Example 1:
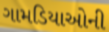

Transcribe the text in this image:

ગામડિયાઓની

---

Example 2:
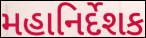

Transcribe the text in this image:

મહાનિર્દેશક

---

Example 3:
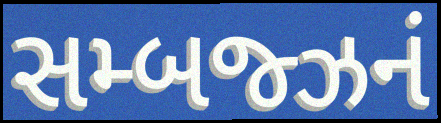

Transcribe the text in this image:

સમ્બજ્ઝનં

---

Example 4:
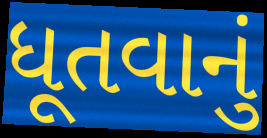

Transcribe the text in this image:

ધૂતવાનું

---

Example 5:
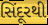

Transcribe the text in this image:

સિંદૂરથી